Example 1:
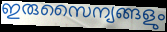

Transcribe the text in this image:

ഇരുസൈന്യങ്ങളും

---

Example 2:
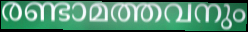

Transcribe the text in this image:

രണ്ടാമത്തവനും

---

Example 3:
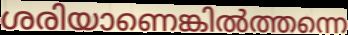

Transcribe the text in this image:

ശരിയാണെങ്കിൽത്തന്നെ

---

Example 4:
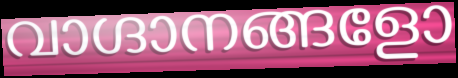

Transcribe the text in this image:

വാഗ്ദാനങ്ങളോ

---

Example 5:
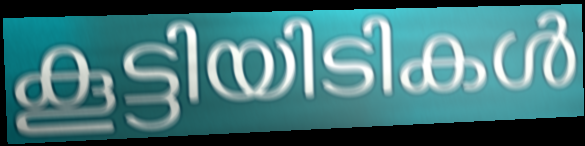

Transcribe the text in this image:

കൂട്ടിയിടികൾ